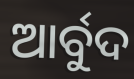
ଆର୍ବୁଦ